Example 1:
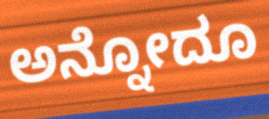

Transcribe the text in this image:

ಅನ್ನೋದೂ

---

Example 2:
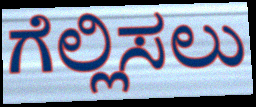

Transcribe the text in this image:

ಗೆಲ್ಲಿಸಲು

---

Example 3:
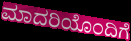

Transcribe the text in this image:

ಮಾದರಿಯೊಂದಿಗೆ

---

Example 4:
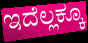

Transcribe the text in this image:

ಇದೆಲ್ಲಕ್ಕೂ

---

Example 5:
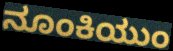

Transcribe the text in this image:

ನೂಂಕಿಯುಂ